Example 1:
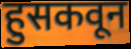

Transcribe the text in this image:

हुसकवून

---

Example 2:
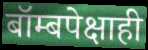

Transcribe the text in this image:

बॉम्बपेक्षाही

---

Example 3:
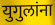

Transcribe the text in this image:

युगुलांना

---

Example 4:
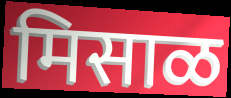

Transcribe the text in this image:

मिसाळ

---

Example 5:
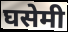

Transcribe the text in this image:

घसेमी